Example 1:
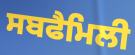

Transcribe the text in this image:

ਸਬਫੈਮਿਲੀ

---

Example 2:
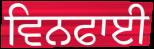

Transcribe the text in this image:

ਵਿਨਫਾਈ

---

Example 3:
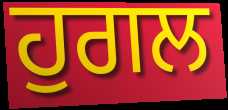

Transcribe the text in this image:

ਹੁਗਲ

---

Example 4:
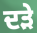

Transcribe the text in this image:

ਦੜੇ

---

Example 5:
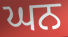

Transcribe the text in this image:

ਘਨ